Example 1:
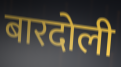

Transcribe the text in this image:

बारदोली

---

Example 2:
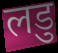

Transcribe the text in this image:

लडु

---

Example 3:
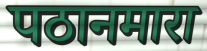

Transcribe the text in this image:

पठानमारा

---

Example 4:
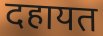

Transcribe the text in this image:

दहायत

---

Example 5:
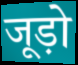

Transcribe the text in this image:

जूड़ो